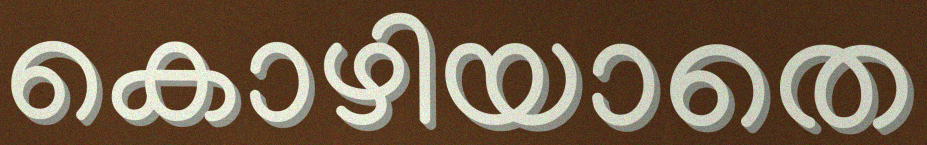
കൊഴിയാതെ